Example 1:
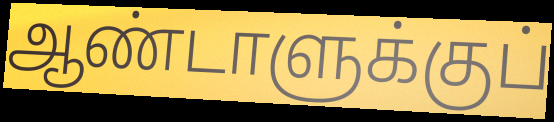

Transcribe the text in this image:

ஆண்டாளுக்குப்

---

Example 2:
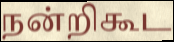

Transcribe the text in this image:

நன்றிகூட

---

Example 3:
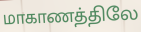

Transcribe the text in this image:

மாகாணத்திலே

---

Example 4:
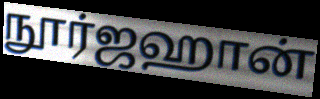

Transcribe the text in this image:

நூர்ஜஹான்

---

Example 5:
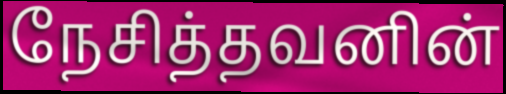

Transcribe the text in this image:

நேசித்தவனின்